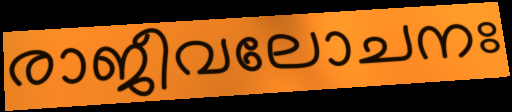
രാജീവലോചനഃ